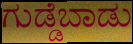
ಗುಡ್ಡೆಬಾಡು